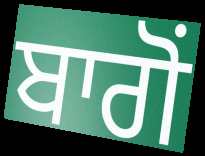
ਬਾਗੋਂ